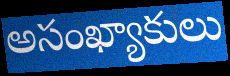
అసంఖ్యాకులు